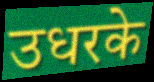
उधरके